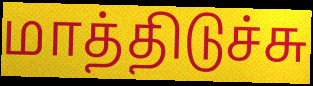
மாத்திடுச்சு